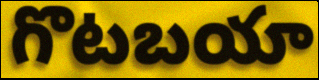
గొటబయా